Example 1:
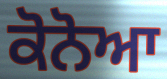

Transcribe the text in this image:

ਕੋਨੋਆ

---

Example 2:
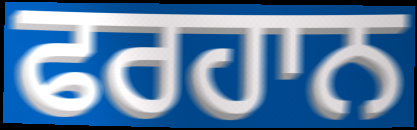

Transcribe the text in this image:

ਫਰਹਾਨ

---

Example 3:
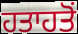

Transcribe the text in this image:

ਹਤਾਹਤੋਂ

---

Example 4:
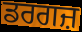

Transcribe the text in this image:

ਡਰਗਜ਼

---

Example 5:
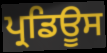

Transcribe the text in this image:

ਪ੍ਰਡਿਊਸ